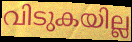
വിടുകയില്ല